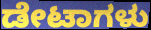
ಡೇಟಾಗಳು